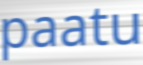
paatu